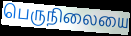
பெருநிலையை